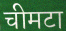
चीमटा